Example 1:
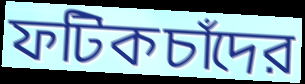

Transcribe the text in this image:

ফটিকচাঁদের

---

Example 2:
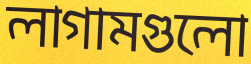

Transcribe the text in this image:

লাগামগুলো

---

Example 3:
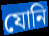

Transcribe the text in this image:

যোনি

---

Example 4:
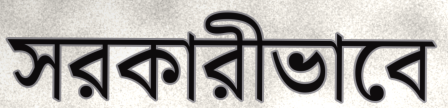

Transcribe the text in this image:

সরকারীভাবে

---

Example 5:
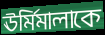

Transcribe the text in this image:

ঊর্মিমালাকে